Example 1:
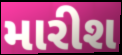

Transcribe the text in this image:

મારીશ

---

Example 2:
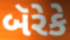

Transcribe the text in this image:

બૅરેકે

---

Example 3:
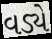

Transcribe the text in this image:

વડ્યે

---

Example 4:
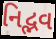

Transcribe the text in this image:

નિદ્ભવ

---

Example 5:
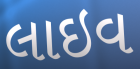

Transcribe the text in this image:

લાઇવ